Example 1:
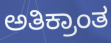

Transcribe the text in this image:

ಅತಿಕ್ರಾಂತ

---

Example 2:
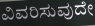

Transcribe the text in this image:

ವಿವರಿಸುವುದೇ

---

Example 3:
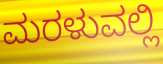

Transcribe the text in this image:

ಮರಳುವಲ್ಲಿ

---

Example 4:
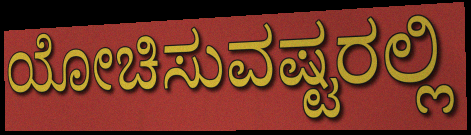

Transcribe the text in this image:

ಯೋಚಿಸುವಷ್ಟರಲ್ಲಿ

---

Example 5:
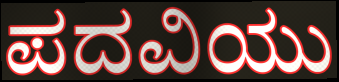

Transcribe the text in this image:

ಪದವಿಯು